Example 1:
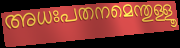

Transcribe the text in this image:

അധഃപതനമെന്തുള്ളൂ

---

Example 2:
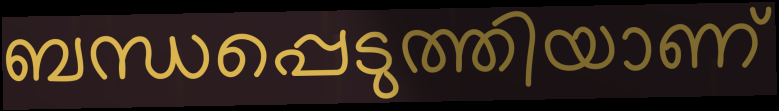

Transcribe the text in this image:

ബന്ധപ്പെടുത്തിയാണ്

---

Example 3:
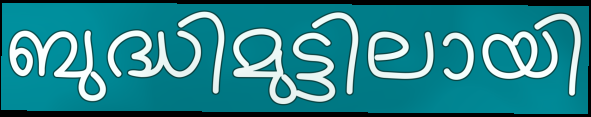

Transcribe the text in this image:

ബുദ്ധിമുട്ടിലായി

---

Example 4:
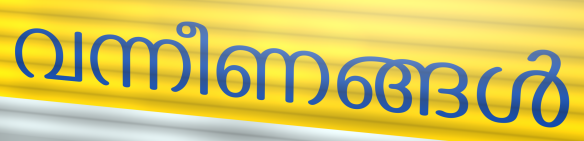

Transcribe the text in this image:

വന്നീണങ്ങൾ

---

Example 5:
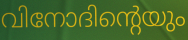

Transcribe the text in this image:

വിനോദിന്റെയും